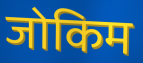
जोकिम